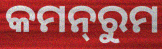
କମନ୍‌ରୁମ